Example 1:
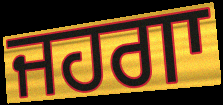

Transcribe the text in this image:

ਜਹਗਾ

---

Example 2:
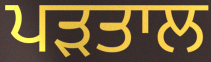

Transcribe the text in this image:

ਪੜਤਾਲ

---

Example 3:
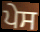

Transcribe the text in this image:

ਪੇਸ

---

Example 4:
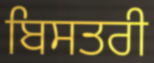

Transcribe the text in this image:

ਬਿਸਤਰੀ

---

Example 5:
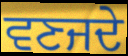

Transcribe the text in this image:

ਵਣਜਦੇ